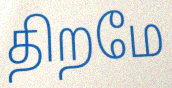
திறமே